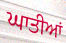
ਘਾਤੀਆਂ